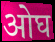
ओघ